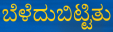
ಬೆಳೆದುಬಿಟ್ಟಿತು